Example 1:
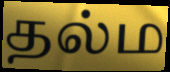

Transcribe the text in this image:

தல்ம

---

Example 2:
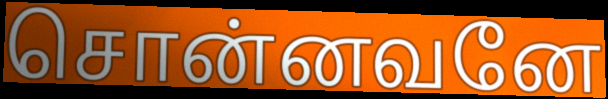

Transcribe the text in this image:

சொன்னவனே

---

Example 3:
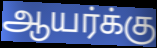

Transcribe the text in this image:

ஆயர்க்கு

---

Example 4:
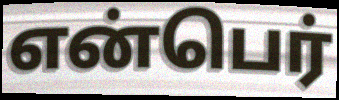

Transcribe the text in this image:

என்பெர்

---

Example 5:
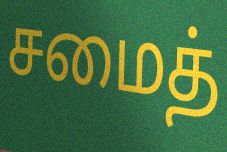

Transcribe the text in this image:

சமைத்